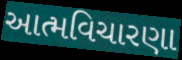
આત્મવિચારણા